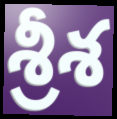
శ్రీశ